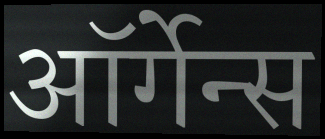
ऑर्गेन्स